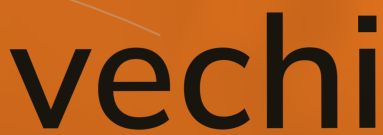
vechi